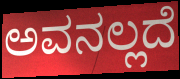
ಅವನಲ್ಲದೆ